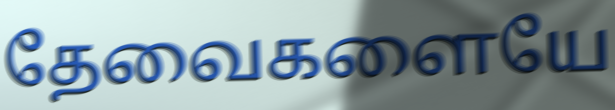
தேவைகளையே